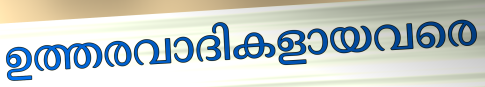
ഉത്തരവാദികളായവരെ